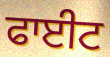
ਫਾਈਟ